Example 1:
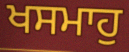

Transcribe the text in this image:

ਖਸਮਾਹੁ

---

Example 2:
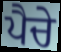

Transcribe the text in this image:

ਪੈਚੇ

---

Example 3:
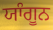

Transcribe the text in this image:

ਯਾੰਗੂਨ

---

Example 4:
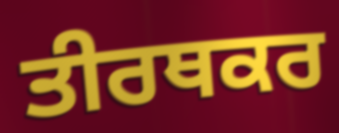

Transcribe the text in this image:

ਤੀਰਥਕਰ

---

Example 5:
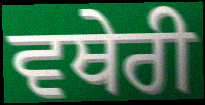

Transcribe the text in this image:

ਵਥੇਰੀ